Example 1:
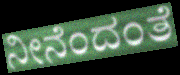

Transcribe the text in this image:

ನೀನೆಂದಂತೆ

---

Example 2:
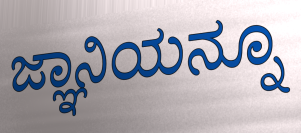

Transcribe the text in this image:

ಜ್ಞಾನಿಯನ್ನೂ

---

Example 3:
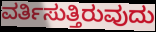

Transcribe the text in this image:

ವರ್ತಿಸುತ್ತಿರುವುದು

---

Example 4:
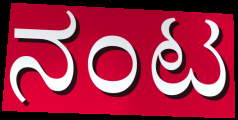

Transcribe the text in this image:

ನಂಟ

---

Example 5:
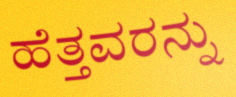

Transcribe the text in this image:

ಹೆತ್ತವರನ್ನು